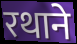
रथाने